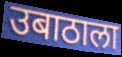
उबाठाला